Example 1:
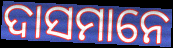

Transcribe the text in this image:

ଦାସମାନେ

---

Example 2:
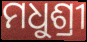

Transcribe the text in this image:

ମଧୁଶ୍ରୀ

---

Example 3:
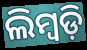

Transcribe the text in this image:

ଲିମ୍ବଡ଼ି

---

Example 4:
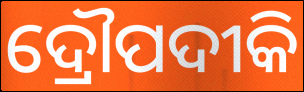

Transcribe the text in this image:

ଦ୍ରୌପଦୀକି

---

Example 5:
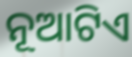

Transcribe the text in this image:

ନୂଆଟିଏ